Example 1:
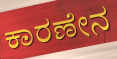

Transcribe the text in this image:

ಕಾರಣೇನ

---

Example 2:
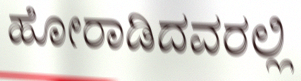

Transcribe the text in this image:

ಹೋರಾಡಿದವರಲ್ಲಿ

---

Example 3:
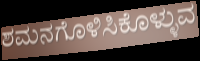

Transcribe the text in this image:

ಶಮನಗೊಳಿಸಿಕೊಳ್ಳುವ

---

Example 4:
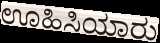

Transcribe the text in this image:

ಊಹಿಸಿಯಾರು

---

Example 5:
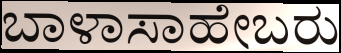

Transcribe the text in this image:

ಬಾಳಾಸಾಹೇಬರು